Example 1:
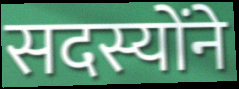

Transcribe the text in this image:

सदस्योंने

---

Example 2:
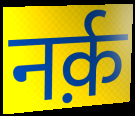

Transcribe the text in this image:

नर्क़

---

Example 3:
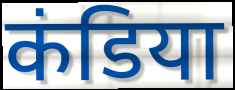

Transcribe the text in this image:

कंडिया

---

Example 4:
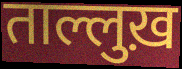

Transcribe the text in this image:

ताल्लुख़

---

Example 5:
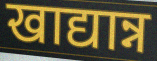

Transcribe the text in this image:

खाद्यान्न